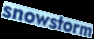
snowstorm